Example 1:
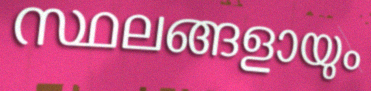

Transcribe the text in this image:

സ്ഥലങ്ങളായും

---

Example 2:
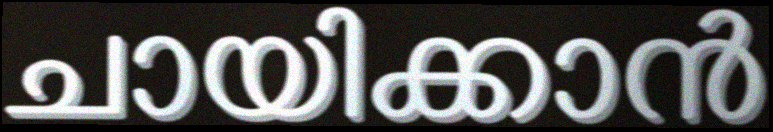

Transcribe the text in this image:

ചായിക്കാൻ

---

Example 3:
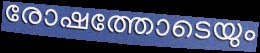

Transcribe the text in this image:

രോഷത്തോടെയും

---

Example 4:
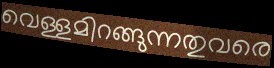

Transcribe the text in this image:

വെള്ളമിറങ്ങുന്നതുവരെ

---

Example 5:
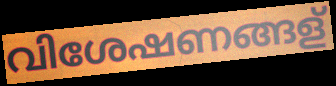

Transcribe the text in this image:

വിശേഷണങ്ങള്